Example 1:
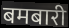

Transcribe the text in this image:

बमबारी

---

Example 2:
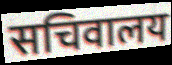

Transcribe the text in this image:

सचिवालय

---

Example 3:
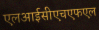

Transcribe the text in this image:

एलआईसीएचएफएल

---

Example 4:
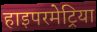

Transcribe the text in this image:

हाइपरमेट्रिया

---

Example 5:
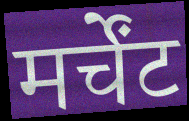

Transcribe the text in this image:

मर्चेंट